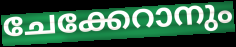
ചേക്കേറാനും